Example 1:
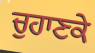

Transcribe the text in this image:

ਚੁਹਾਣਕੇ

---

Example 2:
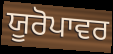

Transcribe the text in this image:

ਯੂਰੋਪਾਵਰ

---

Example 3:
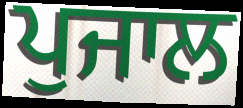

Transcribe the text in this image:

ਪੁਜਾਲ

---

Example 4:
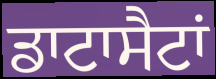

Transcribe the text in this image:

ਡਾਟਾਸੈਟਾਂ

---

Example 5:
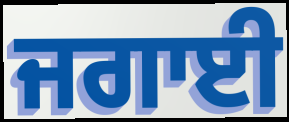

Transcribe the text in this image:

ਜਗਾਈ